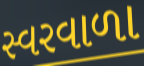
સ્વરવાળા